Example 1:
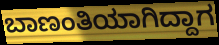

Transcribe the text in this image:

ಬಾಣಂತಿಯಾಗಿದ್ದಾಗ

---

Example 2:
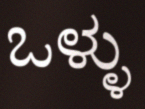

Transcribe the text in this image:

ಒಳ್ಳು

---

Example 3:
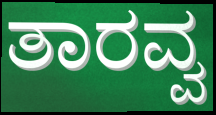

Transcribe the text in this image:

ತಾರವ್ವ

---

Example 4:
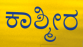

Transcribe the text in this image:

ಕಾಶ್ಮೀರ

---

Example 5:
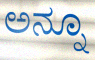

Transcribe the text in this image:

ಅನ್ನೂ